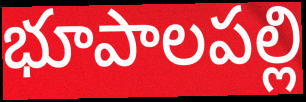
భూపాలపల్లి